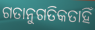
ଗତାନୁଗତିକତାହିଁ